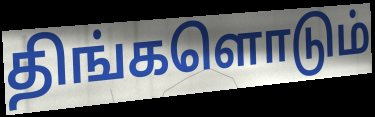
திங்களொடும்